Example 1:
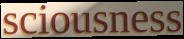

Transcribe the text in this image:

sciousness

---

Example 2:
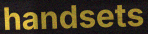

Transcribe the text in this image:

handsets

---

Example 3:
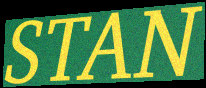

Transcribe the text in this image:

STAN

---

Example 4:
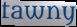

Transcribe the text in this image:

tawny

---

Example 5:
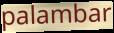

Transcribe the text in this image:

palambar